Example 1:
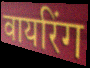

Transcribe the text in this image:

वायरिंग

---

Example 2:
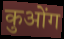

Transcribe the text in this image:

कुओंग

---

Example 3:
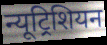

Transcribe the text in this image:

न्यूट्रिशियन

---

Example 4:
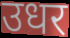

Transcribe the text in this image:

उधर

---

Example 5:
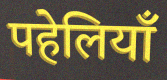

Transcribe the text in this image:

पहेलियाँ